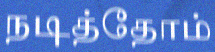
நடித்தோம்